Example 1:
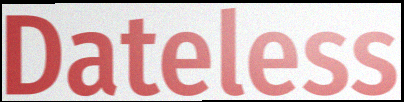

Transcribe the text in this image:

Dateless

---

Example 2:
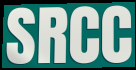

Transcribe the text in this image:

SRCC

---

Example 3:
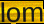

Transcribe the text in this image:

lom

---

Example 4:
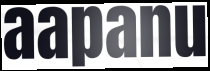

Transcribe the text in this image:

aapanu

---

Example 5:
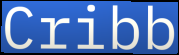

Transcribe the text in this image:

Cribb